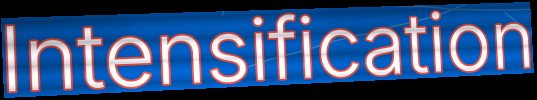
Intensification